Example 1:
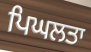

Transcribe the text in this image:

ਪਿਘਲਤਾ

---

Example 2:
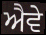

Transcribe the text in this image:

ਐਵੇ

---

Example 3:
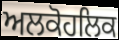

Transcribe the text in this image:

ਅਲਕੋਹਲਿਕ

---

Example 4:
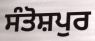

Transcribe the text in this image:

ਸੰਤੋਸ਼ਪੁਰ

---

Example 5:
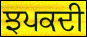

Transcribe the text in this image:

ਝਪਕਦੀ